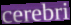
cerebri